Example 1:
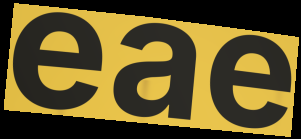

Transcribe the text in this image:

eae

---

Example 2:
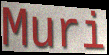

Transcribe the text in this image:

Muri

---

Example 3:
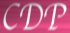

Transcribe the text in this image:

CDP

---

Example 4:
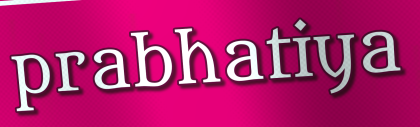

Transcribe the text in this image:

prabhatiya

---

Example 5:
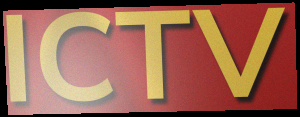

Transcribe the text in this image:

ICTV